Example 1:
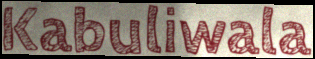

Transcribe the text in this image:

Kabuliwala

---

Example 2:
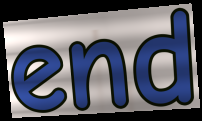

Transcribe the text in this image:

end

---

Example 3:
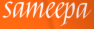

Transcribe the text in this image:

sameepa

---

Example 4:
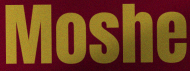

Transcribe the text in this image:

Moshe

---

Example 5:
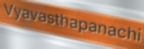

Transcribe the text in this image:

Vyavasthapanachi